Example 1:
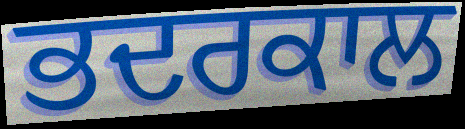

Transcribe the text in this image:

ਭਦਰਕਾਲ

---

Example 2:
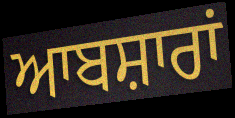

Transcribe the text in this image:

ਆਬਸ਼ਾਰਾਂ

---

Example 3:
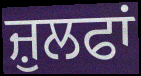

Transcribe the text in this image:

ਜ਼ੁਲਫਾਂ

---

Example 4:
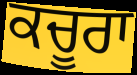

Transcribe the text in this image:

ਕਚੂਰਾ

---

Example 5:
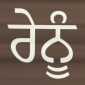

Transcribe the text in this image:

ਰੇਨੂੰ